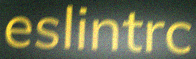
eslintrc